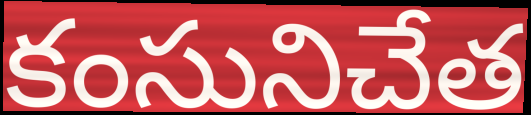
కంసునిచేత